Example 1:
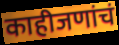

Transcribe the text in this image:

काहीजणांचं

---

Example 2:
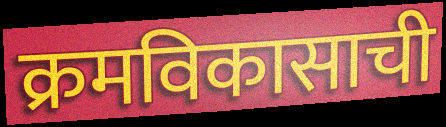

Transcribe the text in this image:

क्रमविकासाची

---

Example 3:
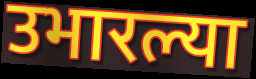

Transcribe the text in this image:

उभारल्या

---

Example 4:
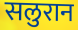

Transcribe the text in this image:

सलुरान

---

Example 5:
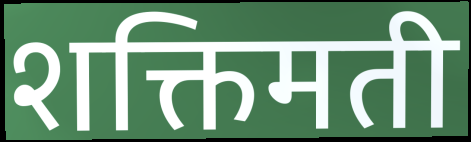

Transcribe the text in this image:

शक्तिमती